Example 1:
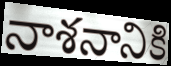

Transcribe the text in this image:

నాశనానికి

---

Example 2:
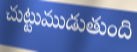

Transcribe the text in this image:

చుట్టుముడుతుంది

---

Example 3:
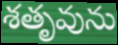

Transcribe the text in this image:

శతృవును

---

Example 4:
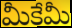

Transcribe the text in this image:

మీకేమీ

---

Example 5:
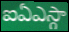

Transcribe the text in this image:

ఐఏఎస్గా